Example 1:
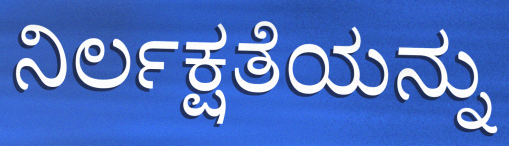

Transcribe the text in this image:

ನಿರ್ಲಕ್ಷತೆಯನ್ನು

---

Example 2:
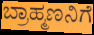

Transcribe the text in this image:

ಬ್ರಾಹ್ಮಣನಿಗೆ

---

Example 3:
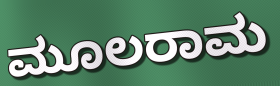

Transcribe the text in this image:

ಮೂಲರಾಮ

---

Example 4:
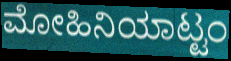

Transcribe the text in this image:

ಮೋಹಿನಿಯಾಟ್ಟಂ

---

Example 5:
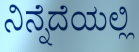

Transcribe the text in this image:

ನಿನ್ನೆದೆಯಲ್ಲಿ